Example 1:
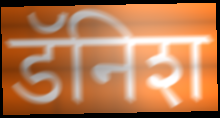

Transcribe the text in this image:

डॅनिश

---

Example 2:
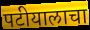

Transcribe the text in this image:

पटीयालाचा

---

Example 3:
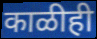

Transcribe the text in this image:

काळीही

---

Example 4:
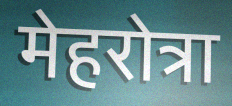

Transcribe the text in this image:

मेहरोत्रा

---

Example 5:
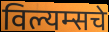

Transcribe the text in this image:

विल्यम्सचे